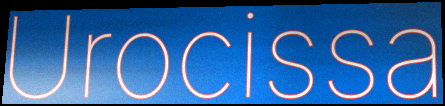
Urocissa